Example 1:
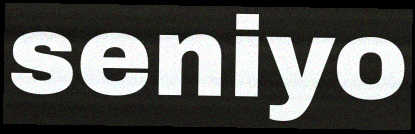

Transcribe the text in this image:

seniyo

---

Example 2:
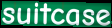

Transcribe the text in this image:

suitcase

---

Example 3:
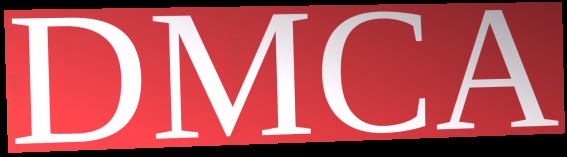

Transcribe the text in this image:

DMCA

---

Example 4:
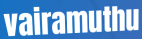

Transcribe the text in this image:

vairamuthu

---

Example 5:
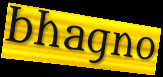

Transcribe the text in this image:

bhagno